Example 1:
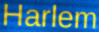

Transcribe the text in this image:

Harlem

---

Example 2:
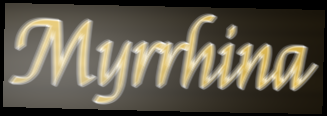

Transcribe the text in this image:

Myrrhina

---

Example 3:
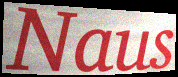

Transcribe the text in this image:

Naus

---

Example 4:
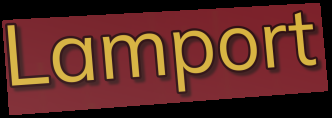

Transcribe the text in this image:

Lamport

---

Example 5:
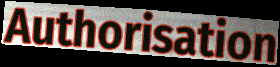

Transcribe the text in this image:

Authorisation